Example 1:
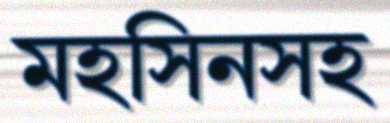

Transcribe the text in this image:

মহসিনসহ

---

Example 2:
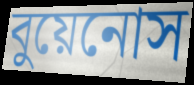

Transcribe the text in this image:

বুয়েনোস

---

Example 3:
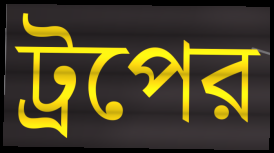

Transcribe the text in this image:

ট্রপের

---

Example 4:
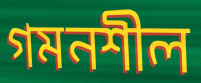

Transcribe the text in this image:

গমনশীল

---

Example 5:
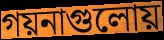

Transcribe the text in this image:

গয়নাগুলোয়